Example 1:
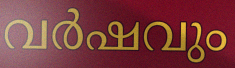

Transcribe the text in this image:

വർഷവും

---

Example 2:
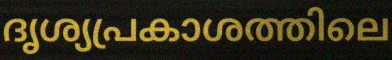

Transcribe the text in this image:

ദൃശ്യപ്രകാശത്തിലെ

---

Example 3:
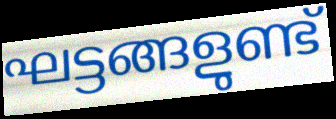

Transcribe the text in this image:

ഘട്ടങ്ങളുണ്ട്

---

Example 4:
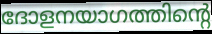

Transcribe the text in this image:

ദോളനയാഗത്തിന്റെ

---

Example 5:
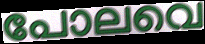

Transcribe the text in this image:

പോലവെ